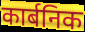
कार्बनिक